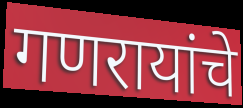
गणरायांचे